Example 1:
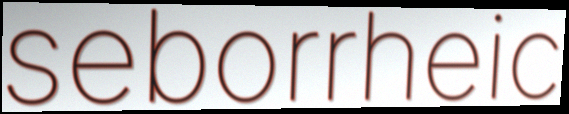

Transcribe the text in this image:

seborrheic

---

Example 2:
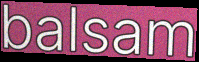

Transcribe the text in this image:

balsam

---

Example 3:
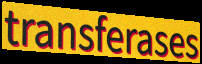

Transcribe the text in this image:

transferases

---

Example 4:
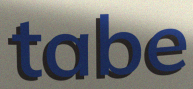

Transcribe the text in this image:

tabe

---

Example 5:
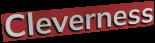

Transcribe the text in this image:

Cleverness